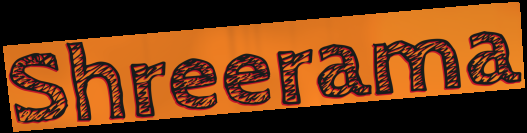
Shreerama